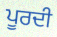
ਪੂਰਦੀ